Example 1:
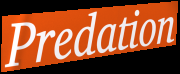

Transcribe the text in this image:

Predation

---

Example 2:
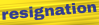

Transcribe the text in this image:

resignation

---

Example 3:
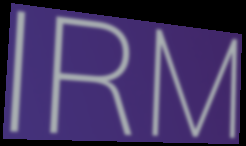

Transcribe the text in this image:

IRM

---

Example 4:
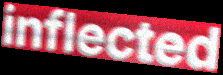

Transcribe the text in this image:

inflected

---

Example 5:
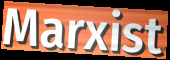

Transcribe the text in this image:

Marxist